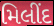
મિલીંદ